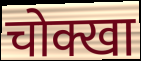
चोक्खा